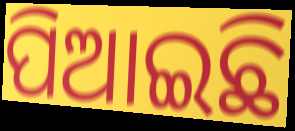
ପିଆଇଛି